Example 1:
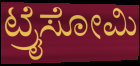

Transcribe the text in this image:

ಟ್ರೈಸೋಮಿ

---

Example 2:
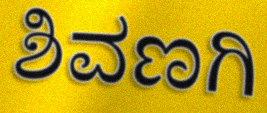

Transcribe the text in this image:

ಶಿವಣಗಿ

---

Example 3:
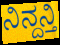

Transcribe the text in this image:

ನಿನ್ದನ್ತಿ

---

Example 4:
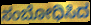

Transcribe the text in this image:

ಸಂಬೋಧಿಸಿದ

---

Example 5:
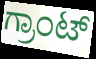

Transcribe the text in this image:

ಗ್ರಾಂಟ್